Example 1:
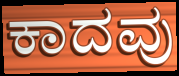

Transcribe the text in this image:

ಕಾದವು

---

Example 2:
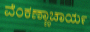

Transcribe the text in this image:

ವೆಂಕಣ್ಣಾಚಾರ್ಯ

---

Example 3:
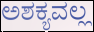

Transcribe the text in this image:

ಅಶಕ್ಯವಲ್ಲ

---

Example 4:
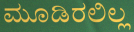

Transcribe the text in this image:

ಮೂಡಿರಲಿಲ್ಲ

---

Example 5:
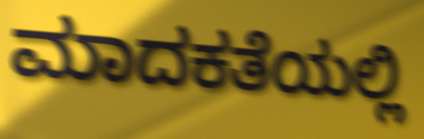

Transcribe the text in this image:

ಮಾದಕತೆಯಲ್ಲಿ